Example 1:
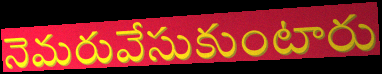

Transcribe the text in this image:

నెమరువేసుకుంటారు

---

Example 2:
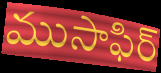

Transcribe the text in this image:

ముసాఫిర్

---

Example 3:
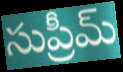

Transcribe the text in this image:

సుప్రీమ్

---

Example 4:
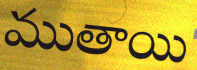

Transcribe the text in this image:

ముతాయి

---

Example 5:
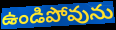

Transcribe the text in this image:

ఉండిపోవును